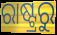
ରାଷ୍ଟ୍ରରୁ